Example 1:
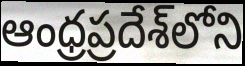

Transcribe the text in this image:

ఆంధ్రప్రదేశ్‌లోని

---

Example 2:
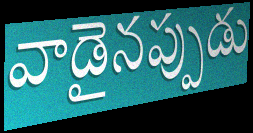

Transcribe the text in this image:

వాడైనప్పుడు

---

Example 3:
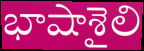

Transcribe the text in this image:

భాషాశైలి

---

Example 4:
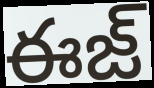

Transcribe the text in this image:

ఈజ్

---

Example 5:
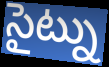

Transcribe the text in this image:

సైట్ను